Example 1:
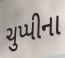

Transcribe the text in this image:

ચુપ્પીના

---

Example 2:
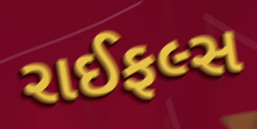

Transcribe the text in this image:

રાઈફલ્સ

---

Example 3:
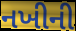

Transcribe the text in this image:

નખીની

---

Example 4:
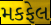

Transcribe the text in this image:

મકફેલ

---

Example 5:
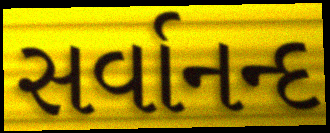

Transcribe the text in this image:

સર્વાનન્દ